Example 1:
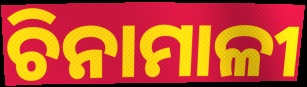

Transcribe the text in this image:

ଚିନାମାଳୀ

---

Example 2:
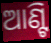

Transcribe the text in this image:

ଆଣ୍ଟି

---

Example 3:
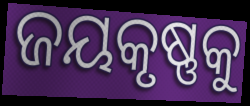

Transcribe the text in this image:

ଜୟକୃଷ୍ଣକୁ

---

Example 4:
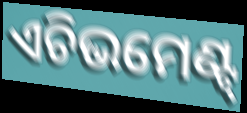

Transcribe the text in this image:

ଏଚିଭମେଣ୍ଟ୍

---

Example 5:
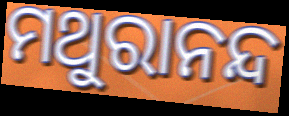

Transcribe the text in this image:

ମଥୁରାନନ୍ଦ